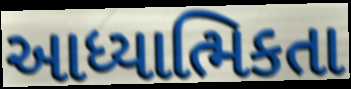
આધ્યાત્મિકતા